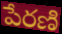
పేరణి